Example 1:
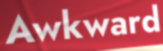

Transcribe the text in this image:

Awkward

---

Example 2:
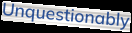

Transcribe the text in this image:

Unquestionably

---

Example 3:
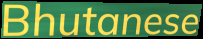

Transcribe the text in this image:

Bhutanese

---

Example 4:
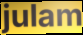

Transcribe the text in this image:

julam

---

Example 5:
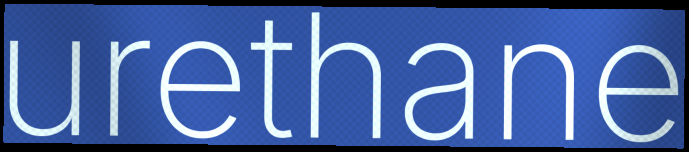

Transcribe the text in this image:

urethane